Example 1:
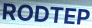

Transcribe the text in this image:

RODTEP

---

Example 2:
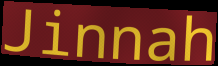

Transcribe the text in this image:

Jinnah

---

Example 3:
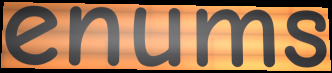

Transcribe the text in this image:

enums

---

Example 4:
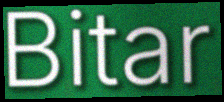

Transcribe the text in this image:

Bitar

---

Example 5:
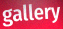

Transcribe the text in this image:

gallery